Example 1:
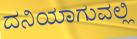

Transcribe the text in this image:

ದನಿಯಾಗುವಲ್ಲಿ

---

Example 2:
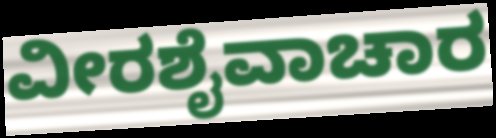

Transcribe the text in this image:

ವೀರಶೈವಾಚಾರ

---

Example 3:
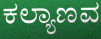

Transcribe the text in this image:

ಕಲ್ಯಾಣವ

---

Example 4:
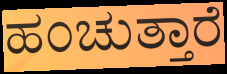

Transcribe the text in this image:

ಹಂಚುತ್ತಾರೆ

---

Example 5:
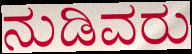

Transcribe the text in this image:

ನುಡಿವರು